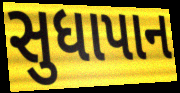
સુધાપાન